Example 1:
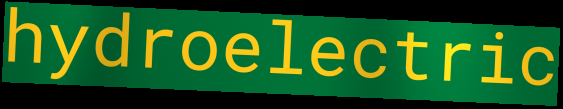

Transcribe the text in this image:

hydroelectric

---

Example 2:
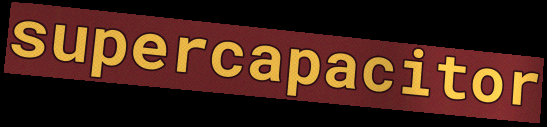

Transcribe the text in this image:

supercapacitor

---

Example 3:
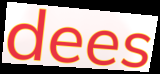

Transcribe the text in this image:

dees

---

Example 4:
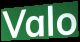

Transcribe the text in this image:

Valo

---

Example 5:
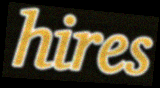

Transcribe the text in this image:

hires